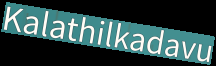
Kalathilkadavu